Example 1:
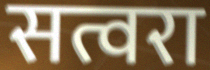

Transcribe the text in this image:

सत्वरा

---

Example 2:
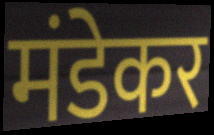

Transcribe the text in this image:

मंडेकर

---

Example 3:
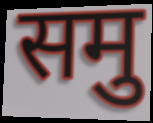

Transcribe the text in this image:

समु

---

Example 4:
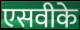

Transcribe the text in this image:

एसवीके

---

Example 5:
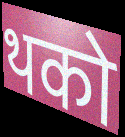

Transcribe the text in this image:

थको